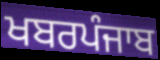
ਖਬਰਪੰਜਾਬ